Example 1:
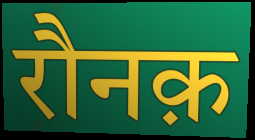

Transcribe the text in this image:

रौनक़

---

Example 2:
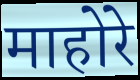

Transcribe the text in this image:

माहोरे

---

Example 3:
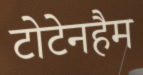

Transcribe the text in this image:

टोटेनहैम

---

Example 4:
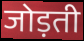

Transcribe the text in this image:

जोड़ती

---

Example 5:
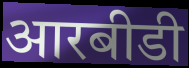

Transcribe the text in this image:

आरबीडी